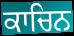
ਕਾਚਿਨ